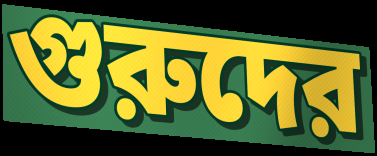
গুরুদের